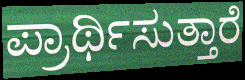
ಪ್ರಾರ್ಥಿಸುತ್ತಾರೆ